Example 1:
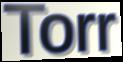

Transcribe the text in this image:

Torr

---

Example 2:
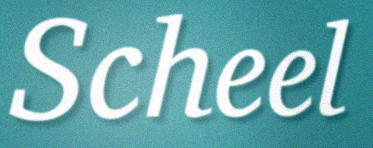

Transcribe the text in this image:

Scheel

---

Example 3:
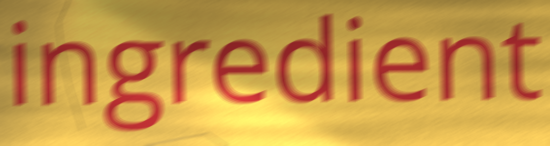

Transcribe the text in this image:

ingredient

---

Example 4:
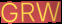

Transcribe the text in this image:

GRW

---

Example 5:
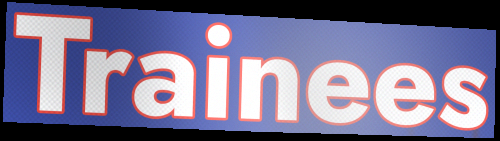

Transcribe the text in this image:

Trainees